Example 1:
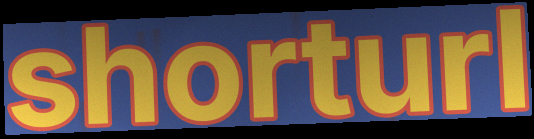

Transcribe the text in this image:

shorturl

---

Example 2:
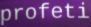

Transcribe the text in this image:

profeti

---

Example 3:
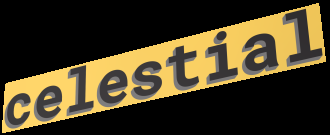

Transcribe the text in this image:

celestial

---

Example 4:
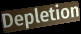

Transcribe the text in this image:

Depletion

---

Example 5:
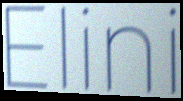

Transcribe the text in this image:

Elini